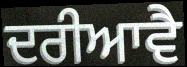
ਦਰੀਆਵੈ